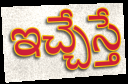
ఇచ్చేస్తే